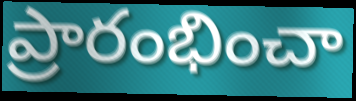
ప్రారంభించా